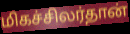
மிகச்சிலர்தான்